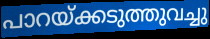
പാറയ്ക്കടുത്തുവച്ചു